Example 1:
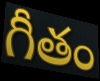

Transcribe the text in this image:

గీతం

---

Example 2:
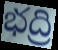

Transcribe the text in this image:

భద్రి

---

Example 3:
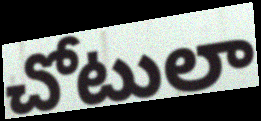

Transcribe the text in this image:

చోటులా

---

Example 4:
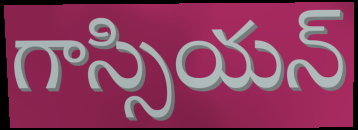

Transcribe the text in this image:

గాస్సియన్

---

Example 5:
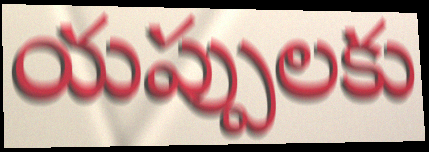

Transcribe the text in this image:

యప్పులకు